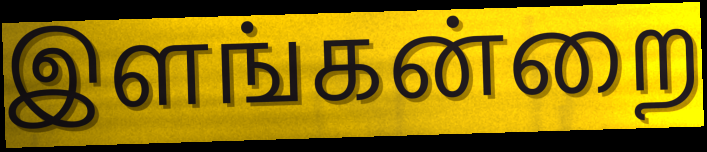
இளங்கன்றை